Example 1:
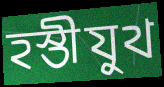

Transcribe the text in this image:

হস্তীযুথ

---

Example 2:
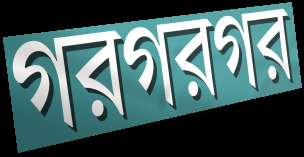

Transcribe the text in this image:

গরগরগর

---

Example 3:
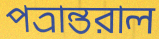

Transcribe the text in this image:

পত্রান্তরাল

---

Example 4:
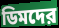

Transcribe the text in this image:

ডিমদের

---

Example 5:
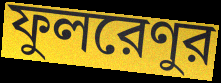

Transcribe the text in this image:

ফুলরেণুর